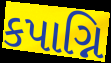
કપાગ્નિ